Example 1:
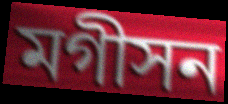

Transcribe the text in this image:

মগীসন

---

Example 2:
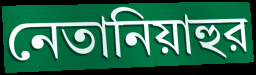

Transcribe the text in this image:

নেতানিয়াহুর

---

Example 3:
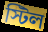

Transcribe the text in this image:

স্টিল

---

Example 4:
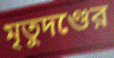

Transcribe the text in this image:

মৃতুদণ্ডের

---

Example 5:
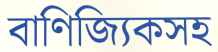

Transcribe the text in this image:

বাণিজ্যিকসহ